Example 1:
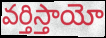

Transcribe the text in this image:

వర్తిస్తాయో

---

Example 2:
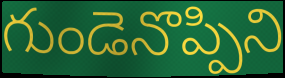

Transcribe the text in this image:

గుండెనొప్పిని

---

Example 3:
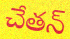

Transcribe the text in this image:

చేతన్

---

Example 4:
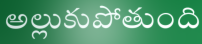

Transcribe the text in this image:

అల్లుకుపోతుంది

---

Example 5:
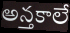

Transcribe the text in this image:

అన్తకాలే